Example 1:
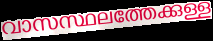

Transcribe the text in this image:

വാസസ്ഥലത്തേക്കുള്ള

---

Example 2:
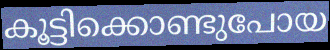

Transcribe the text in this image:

കൂട്ടിക്കൊണ്ടുപോയ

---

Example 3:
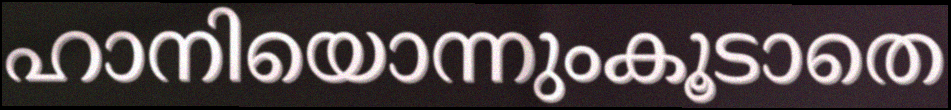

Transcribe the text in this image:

ഹാനിയൊന്നുംകൂടാതെ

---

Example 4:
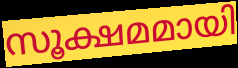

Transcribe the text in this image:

സൂക്ഷമമായി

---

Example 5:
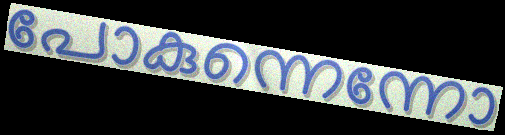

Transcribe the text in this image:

പോകുന്നെന്നോ